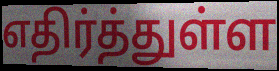
எதிர்த்துள்ள